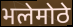
भलेमोठे